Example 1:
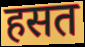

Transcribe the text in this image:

हसत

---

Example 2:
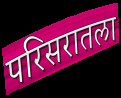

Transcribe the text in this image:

परिसरातला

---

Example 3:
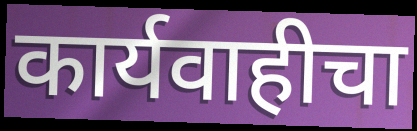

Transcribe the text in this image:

कार्यवाहीचा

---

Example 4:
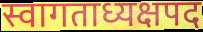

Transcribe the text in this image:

स्वागताध्यक्षपद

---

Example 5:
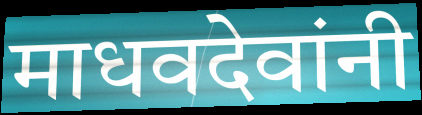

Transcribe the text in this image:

माधवदेवांनी